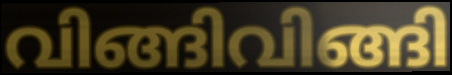
വിങ്ങിവിങ്ങി